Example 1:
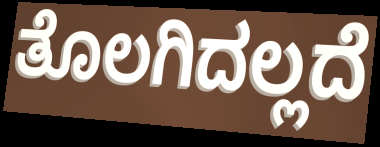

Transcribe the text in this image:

ತೊಲಗಿದಲ್ಲದೆ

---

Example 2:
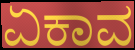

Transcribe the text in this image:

ಏಕಾವ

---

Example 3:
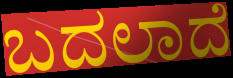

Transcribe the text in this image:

ಬದಲಾದೆ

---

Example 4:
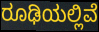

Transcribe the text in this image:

ರೂಢಿಯಲ್ಲಿವೆ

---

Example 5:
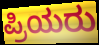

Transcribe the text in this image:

ಪ್ರಿಯರು